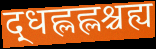
द्धह्लह्लश्चह्य